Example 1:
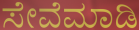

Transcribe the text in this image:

ಸೇವೆಮಾಡಿ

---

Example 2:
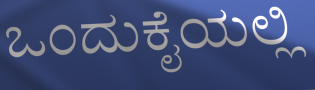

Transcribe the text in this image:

ಒಂದುಕೈಯಲ್ಲಿ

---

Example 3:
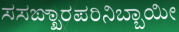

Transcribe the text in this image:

ಸಸಙ್ಖಾರಪರಿನಿಬ್ಬಾಯೀ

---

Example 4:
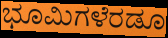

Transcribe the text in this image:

ಭೂಮಿಗಳೆರಡೂ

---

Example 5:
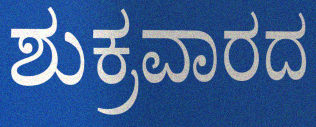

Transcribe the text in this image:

ಶುಕ್ರವಾರದ